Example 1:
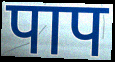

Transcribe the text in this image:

पाप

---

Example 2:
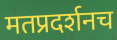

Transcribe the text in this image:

मतप्रदर्शनच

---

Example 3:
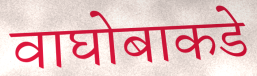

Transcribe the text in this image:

वाघोबाकडे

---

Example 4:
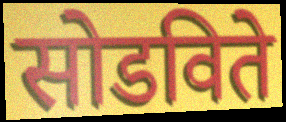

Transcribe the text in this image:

सोडविते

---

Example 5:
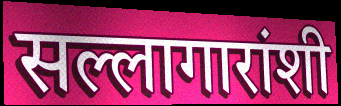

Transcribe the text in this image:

सल्लागारांशी